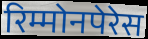
रिम्मोनपेरेस